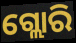
ଗ୍ଲୋରି